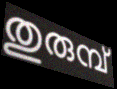
തുരുമ്പ്